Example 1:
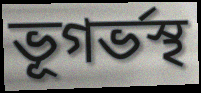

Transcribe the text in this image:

ভূগৰ্ভস্থ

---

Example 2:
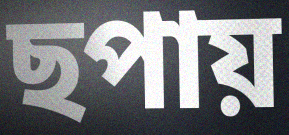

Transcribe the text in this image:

ছপায়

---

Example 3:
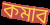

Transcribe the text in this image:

কমাব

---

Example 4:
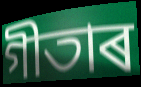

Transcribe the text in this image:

গীতাৰ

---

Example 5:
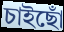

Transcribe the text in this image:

চাইছোঁ